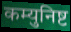
कम्युनिष्ट